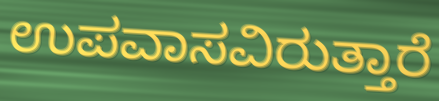
ಉಪವಾಸವಿರುತ್ತಾರೆ